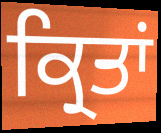
ਕ੍ਰਿਤਾਂ